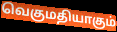
வெகுமதியாகும்